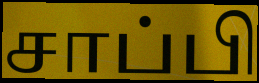
சாப்பி